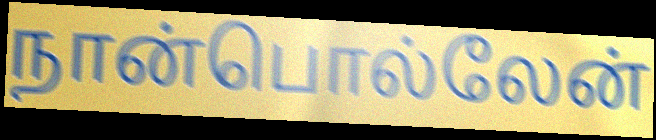
நான்பொல்லேன்